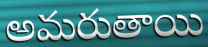
అమరుతాయి